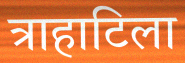
त्राहाटिला